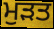
ਮੁੜਤ